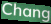
Chang